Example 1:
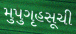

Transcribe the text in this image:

મુપુગૃહસૂચી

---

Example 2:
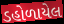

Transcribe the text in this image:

ડહોળાયેલ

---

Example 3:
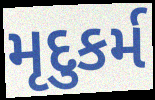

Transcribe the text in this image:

મૃદુકર્મ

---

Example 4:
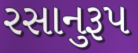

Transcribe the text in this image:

રસાનુરૂપ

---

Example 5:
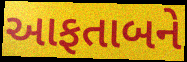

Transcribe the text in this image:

આફતાબને